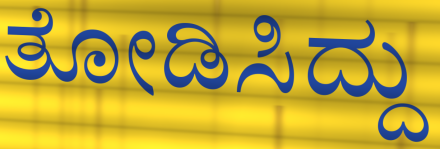
ತೋಡಿಸಿದ್ದು